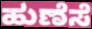
ಹುಣೆಸೆ